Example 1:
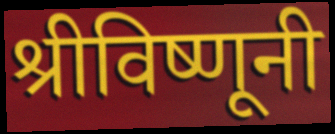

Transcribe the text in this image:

श्रीविष्णूनी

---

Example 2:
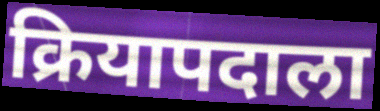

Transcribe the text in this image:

क्रियापदाला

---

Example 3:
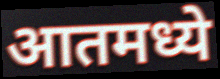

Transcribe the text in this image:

आतमध्ये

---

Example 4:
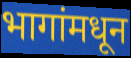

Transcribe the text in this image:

भागांमधून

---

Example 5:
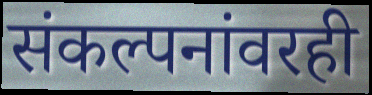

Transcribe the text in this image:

संकल्पनांवरही